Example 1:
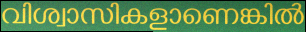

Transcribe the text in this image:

വിശ്വാസികളാണെങ്കിൽ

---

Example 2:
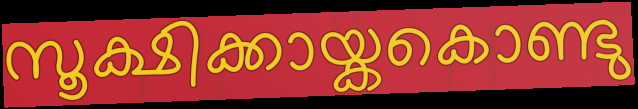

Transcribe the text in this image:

സൂക്ഷിക്കായ്കകൊണ്ടു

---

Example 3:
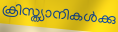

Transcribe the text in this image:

ക്രിസ്ത്യാനികൾക്കു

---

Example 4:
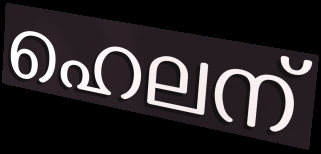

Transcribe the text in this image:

ഹെലന്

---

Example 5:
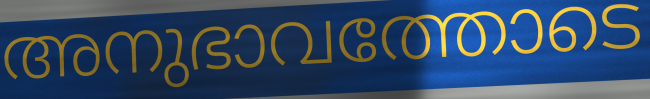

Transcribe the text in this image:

അനുഭാവത്തോടെ